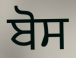
ਬੋਸ